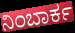
ನಿಂಬಾರ್ಕ